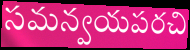
సమన్వయపరచి